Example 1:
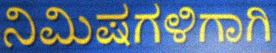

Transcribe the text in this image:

ನಿಮಿಷಗಳಿಗಾಗಿ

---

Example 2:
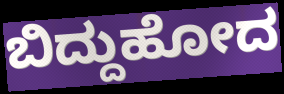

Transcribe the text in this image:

ಬಿದ್ದುಹೋದ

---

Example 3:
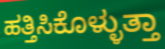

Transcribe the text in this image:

ಹತ್ತಿಸಿಕೊಳ್ಳುತ್ತಾ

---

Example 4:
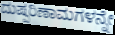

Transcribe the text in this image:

ದುಷ್ಪರಿಣಾಮಗಳನ್ನೇ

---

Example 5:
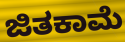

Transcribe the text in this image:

ಜಿತಕಾಮೆ